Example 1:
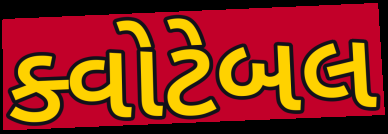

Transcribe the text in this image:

ક્વોટેબલ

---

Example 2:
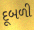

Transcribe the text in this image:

દૂબળી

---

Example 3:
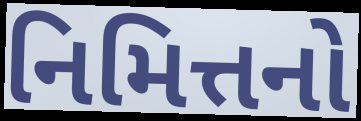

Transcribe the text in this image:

નિમિત્તનો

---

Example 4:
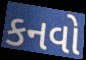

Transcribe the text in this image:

કનવો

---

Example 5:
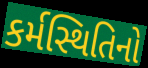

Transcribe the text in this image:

કર્મસ્થિતિનો